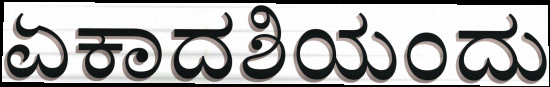
ಏಕಾದಶಿಯಂದು